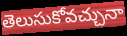
తెలుసుకోవచ్చునా